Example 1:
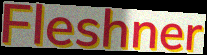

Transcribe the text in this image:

Fleshner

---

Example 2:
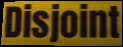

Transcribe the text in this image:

Disjoint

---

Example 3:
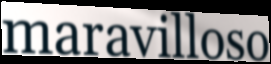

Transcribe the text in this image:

maravilloso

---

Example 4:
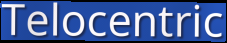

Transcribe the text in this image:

Telocentric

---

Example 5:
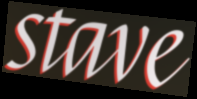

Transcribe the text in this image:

stave